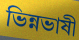
ভিন্নভাষী